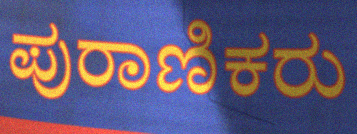
ಪುರಾಣಿಕರು